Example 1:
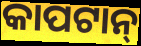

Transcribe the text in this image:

କାପଟାନ୍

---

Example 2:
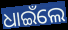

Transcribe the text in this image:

ଧାଇଁଲେ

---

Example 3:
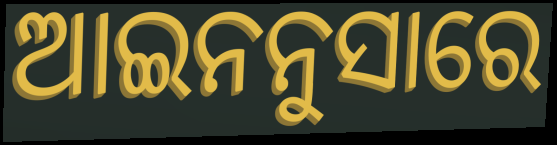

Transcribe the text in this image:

ଆଇନନୁସାରେ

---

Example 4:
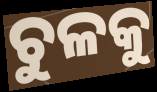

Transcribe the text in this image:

ଚୁଳକୁ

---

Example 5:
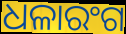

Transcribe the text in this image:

ଧଳାରଂଗ